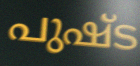
പുഷ്ട